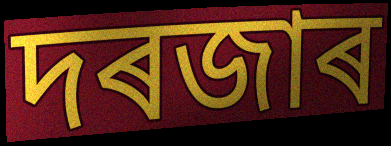
দৰজাৰ